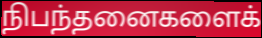
நிபந்தனைகளைக்